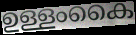
ഉള്ളംകൈ